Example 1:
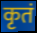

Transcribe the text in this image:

कृतं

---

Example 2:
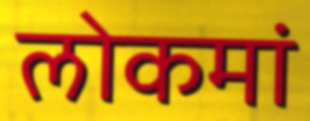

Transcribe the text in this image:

लोकमां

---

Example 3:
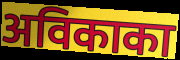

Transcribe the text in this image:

अविकाका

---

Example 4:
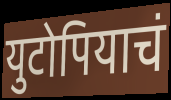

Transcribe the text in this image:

युटोपियाचं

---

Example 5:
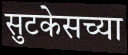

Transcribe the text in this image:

सुटकेसच्या